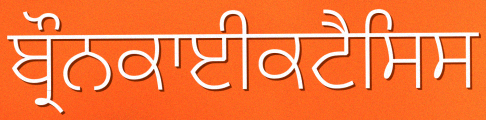
ਬ੍ਰੌਨਕਾਈਕਟੈਸਿਸ